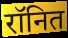
रॉनित